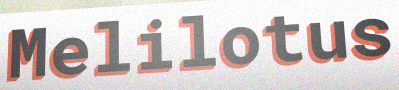
Melilotus